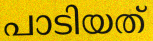
പാടിയത്